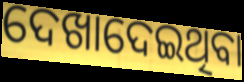
ଦେଖାଦେଇଥିବା